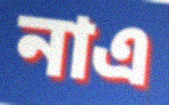
নাএ